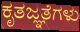
ಕೃತಜ್ಞತೆಗಳು